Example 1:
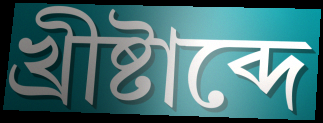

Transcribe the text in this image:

খ্রীষ্টাব্দে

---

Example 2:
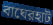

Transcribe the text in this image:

বাঘেরহাট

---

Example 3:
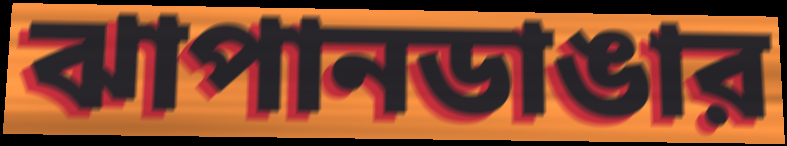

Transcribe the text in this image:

ঝাপানডাঙার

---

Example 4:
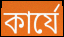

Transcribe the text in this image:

কার্যে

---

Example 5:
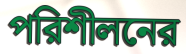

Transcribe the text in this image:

পরিশীলনের